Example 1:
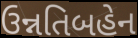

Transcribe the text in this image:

ઉન્નતિબહેન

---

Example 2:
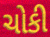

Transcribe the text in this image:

ચોકી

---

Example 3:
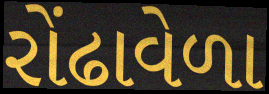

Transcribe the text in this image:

રોંઢાવેળા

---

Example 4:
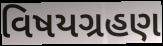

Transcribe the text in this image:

વિષયગ્રહણ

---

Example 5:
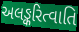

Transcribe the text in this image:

અલઙ્કરિત્વાતિ